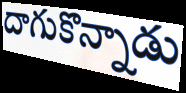
దాగుకొన్నాడు